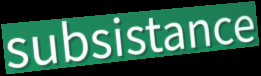
subsistance